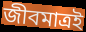
জীবমাত্রই